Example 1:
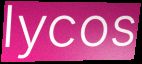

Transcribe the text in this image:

lycos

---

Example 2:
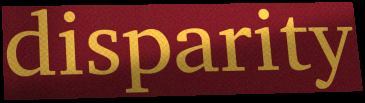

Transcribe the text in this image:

disparity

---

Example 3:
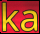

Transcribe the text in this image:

ka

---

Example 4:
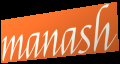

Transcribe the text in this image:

manash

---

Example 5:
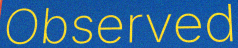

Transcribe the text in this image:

Observed